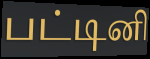
பட்டினி